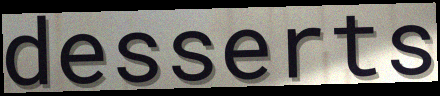
desserts